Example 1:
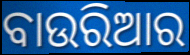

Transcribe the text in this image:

ବାଉରିଆର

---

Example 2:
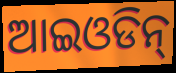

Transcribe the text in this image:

ଆଇଓଡିନ୍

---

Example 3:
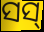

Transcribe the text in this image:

ସସ୍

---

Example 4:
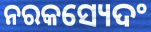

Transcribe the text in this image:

ନରକସ୍ୟେଦଂ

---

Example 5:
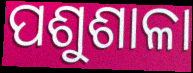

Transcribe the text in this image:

ପଶୁଶାଳା